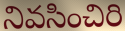
నివసించిరి